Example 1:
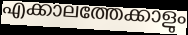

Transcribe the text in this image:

എക്കാലത്തേക്കാളും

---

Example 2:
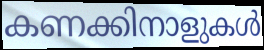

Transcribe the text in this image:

കണക്കിനാളുകൾ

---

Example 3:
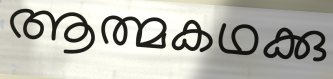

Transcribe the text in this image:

ആത്മകഥക്കു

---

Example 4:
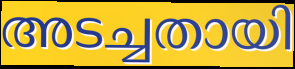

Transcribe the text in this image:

അടച്ചതായി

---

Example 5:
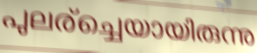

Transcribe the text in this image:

പുലര്ച്ചെയായിരുന്നു